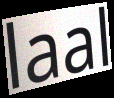
laal